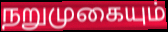
நறுமுகையும்